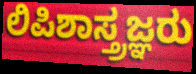
ಲಿಪಿಶಾಸ್ತ್ರಜ್ಞರು